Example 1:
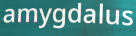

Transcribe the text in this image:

amygdalus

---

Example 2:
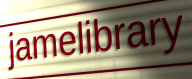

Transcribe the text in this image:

jamelibrary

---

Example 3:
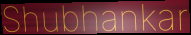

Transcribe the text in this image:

Shubhankar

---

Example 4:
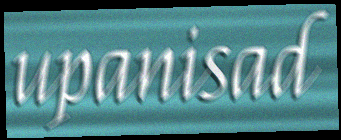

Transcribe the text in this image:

upanisad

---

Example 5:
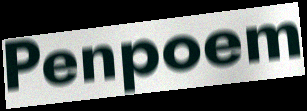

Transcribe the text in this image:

Penpoem